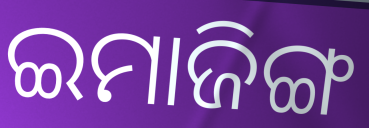
ଇମାଜିଙ୍ଗ